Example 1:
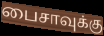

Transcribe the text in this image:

பைசாவுக்கு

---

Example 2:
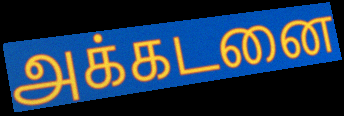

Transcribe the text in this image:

அக்கடனை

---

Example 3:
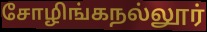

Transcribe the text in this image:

சோழிங்கநல்லூர்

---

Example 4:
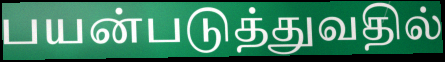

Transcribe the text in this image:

பயன்படுத்துவதில்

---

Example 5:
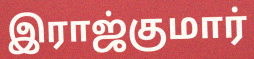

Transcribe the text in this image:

இராஜ்குமார்